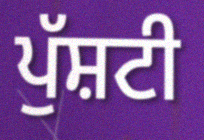
ਪੁੱਸ਼ਟੀ